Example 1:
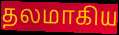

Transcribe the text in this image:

தலமாகிய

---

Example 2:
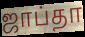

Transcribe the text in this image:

ஜாப்தா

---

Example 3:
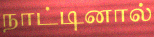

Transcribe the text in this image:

நாட்டினால்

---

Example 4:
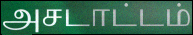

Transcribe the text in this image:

அசடாட்டம்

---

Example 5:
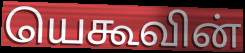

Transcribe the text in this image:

யெகூவின்